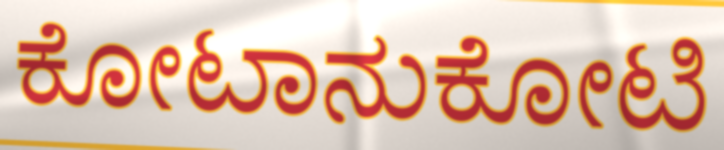
ಕೋಟಾನುಕೋಟಿ